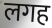
लगह